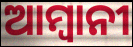
ଆମ୍ବାନୀ